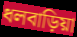
ধলবাড়িয়া